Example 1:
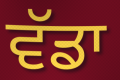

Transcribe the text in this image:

ਵੱਡਾ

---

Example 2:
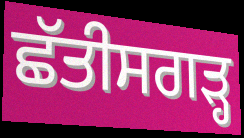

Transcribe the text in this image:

ਛੱਤੀਸਗੜ੍ਹ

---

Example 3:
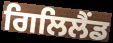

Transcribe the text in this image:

ਗਿਲਿਲੈਂਡ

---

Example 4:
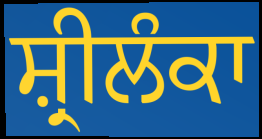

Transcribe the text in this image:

ਸ਼੍ਰੀਲੰਕਾ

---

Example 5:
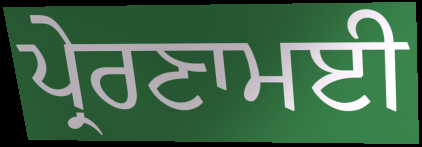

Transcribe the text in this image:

ਪ੍ਰੇਰਣਾਮਈ